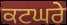
ਕਟਘਰੇ